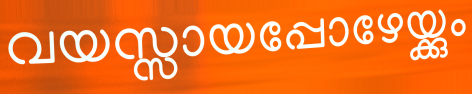
വയസ്സായപ്പോഴേയ്ക്കും